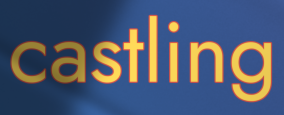
castling